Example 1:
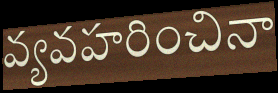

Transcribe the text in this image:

వ్యవహరించినా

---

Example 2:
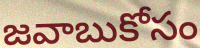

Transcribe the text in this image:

జవాబుకోసం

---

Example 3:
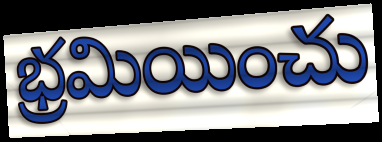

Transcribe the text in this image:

భ్రమియించు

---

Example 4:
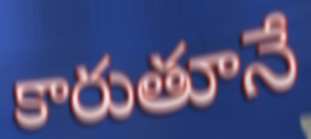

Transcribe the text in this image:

కారుతూనే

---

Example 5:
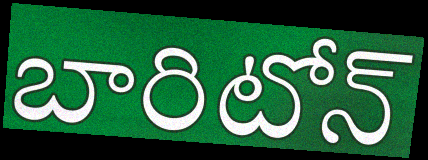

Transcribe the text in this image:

బారిటోన్